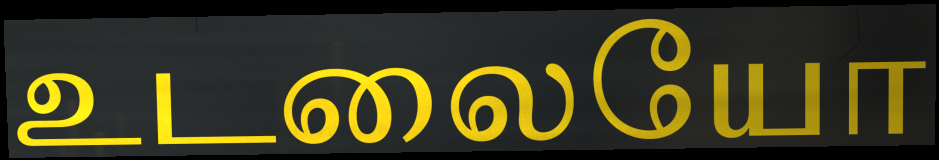
உடலையோ